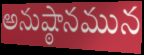
అనుష్ఠానమున